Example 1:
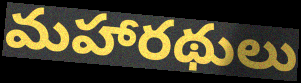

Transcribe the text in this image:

మహారథులు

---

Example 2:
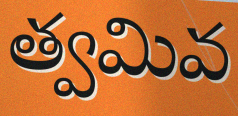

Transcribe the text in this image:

త్వమివ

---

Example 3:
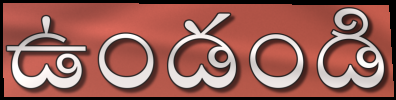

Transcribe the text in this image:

ఉండండి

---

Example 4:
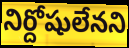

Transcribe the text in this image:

నిర్దోషులేనని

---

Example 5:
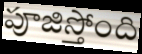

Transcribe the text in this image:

పూజిస్తోంది